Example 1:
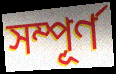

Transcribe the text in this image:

সম্পূৰ্ণ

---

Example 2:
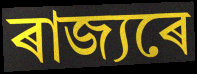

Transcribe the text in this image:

ৰাজ্যৰে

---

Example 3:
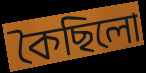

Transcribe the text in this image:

কৈছিলো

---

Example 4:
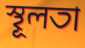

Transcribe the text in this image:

স্থূলতা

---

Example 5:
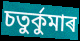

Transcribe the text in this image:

চতুৰ্কুমাৰ